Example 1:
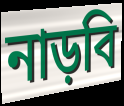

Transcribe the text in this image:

নাড়বি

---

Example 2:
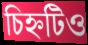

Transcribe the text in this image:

চিহ্নটিও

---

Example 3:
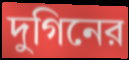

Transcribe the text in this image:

দুগিনের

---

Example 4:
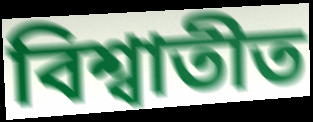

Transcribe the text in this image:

বিশ্বাতীত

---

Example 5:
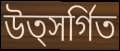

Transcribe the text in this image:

উত্সর্গিত